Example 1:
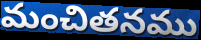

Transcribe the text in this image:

మంచితనము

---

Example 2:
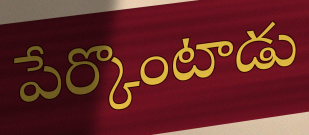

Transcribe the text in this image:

పేర్కొంటాడు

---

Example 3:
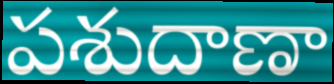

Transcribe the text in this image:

పశుదాణా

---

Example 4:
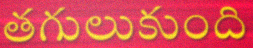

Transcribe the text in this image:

తగులుకుంది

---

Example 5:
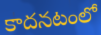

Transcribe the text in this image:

కాదనటంలో